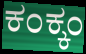
ಕಂಕ್ಕಂ